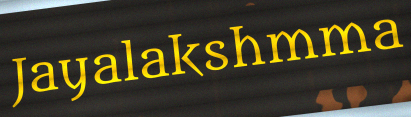
Jayalakshmma